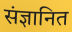
संज्ञानित